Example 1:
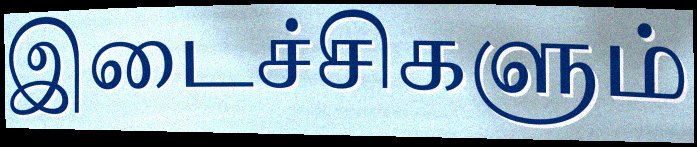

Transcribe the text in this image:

இடைச்சிகளும்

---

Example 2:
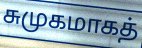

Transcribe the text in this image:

சுமுகமாகத்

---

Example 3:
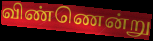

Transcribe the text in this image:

விண்ணென்று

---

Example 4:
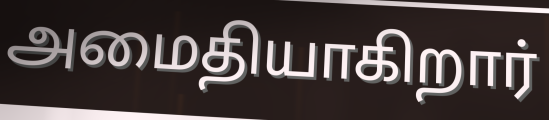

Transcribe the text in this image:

அமைதியாகிறார்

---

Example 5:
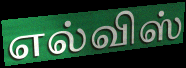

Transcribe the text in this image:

எல்விஸ்